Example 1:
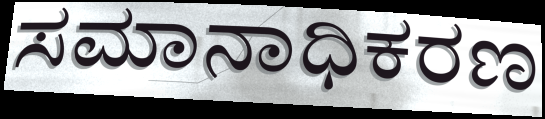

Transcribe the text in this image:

ಸಮಾನಾಧಿಕರಣ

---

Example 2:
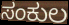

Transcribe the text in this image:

ಸಂಕುಲ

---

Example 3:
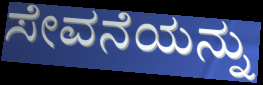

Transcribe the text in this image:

ಸೇವನೆಯನ್ನು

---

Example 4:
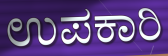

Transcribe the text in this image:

ಉಪಕಾರಿ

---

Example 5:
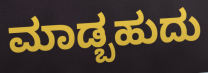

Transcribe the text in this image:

ಮಾಡ್ಬಹುದು